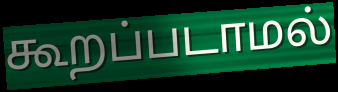
கூறப்படாமல்